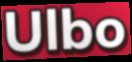
Ulbo